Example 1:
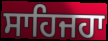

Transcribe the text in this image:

ਸਾਹਿਜਹਾ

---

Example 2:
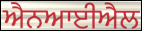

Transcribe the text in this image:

ਐਨਆਈਐਲ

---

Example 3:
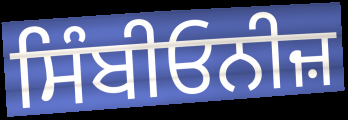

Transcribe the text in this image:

ਸਿੰਬੀਓਨੀਜ਼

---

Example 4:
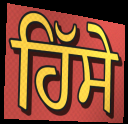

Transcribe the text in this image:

ਹਿੱਸੇ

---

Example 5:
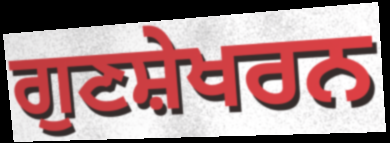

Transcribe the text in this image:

ਗੁਣਸ਼ੇਖਰਨ